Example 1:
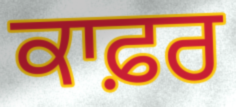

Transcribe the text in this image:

ਕਾਫ਼ਰ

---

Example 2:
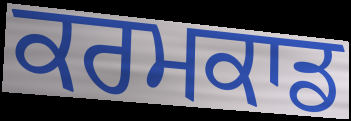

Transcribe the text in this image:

ਕਰਮਕਾਡ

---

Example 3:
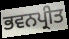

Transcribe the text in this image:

ਭਵਨਪ੍ਰੀਤ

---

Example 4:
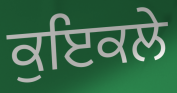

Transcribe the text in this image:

ਕੁਇਕਲੇ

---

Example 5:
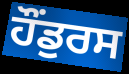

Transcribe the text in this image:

ਹੌਂਡੁਰਸ